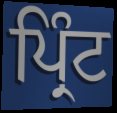
ਪ੍ਰਿੰਟ